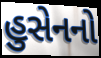
હુસેનનો